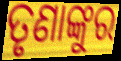
ତୃଣାଙ୍କୁର